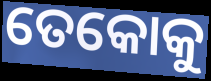
ତେକୋକୁ